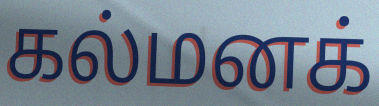
கல்மனக்